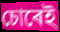
চোৰেই